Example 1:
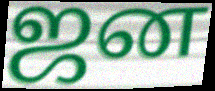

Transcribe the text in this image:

ஜன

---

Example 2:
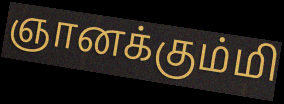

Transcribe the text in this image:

ஞானக்கும்மி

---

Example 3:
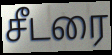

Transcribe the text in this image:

சீடரை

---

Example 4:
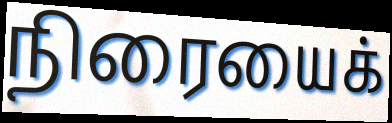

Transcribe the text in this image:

நிரையைக்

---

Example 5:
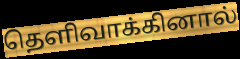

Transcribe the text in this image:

தெளிவாக்கினால்